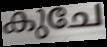
കുചേ